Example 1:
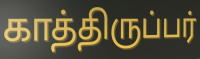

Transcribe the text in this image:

காத்திருப்பர்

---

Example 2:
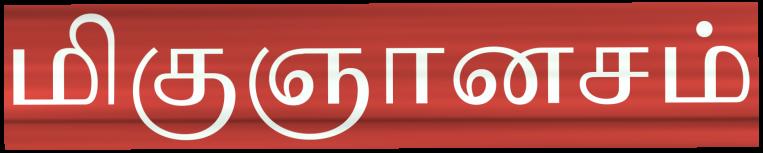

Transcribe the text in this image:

மிகுஞானசம்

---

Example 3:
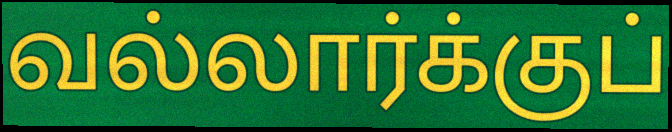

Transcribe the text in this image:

வல்லார்க்குப்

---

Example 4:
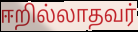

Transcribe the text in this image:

ஈறில்லாதவர்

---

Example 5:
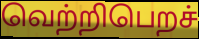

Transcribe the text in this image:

வெற்றிபெறச்